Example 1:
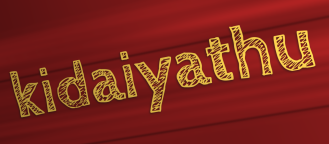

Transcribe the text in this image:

kidaiyathu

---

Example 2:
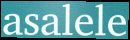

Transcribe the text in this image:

asalele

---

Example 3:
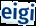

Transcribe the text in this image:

eigi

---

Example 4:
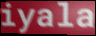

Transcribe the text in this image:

iyala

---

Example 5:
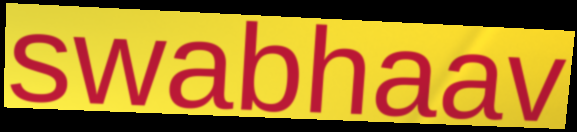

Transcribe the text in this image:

swabhaav